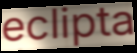
eclipta